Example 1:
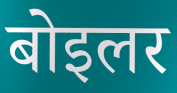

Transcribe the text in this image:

बोइलर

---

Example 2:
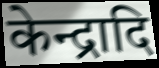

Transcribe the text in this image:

केन्द्रादि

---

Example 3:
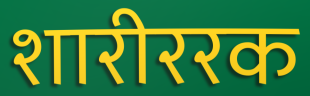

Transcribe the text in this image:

शारीररक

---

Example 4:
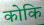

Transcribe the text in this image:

कोकि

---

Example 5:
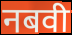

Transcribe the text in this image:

नबवी